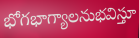
భోగభాగ్యాలనుభవిస్తూ